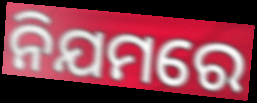
ନିଯମରେ